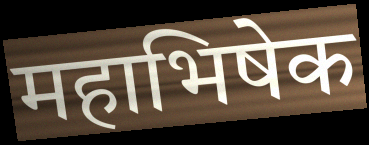
महाभिषेक